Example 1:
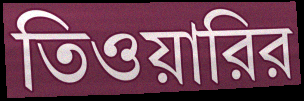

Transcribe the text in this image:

তিওয়ারির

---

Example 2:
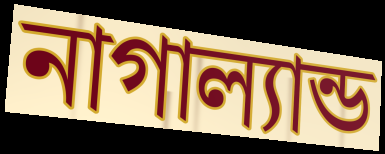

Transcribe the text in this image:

নাগাল্যান্ড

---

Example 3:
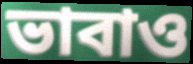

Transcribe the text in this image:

ভাবাও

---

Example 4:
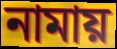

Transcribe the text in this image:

নামায়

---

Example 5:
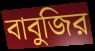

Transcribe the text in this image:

বাবুজির